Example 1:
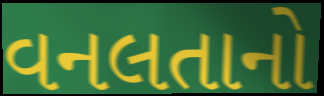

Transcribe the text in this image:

વનલતાનો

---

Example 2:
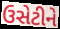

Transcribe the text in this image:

ઉસેટીને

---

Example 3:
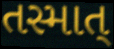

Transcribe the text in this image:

તસ્માત્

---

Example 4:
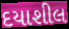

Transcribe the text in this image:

દયાશીલ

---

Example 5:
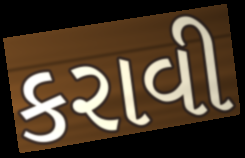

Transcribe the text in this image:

કરાવી